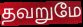
தவறுமே